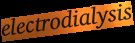
electrodialysis